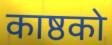
काष्ठको